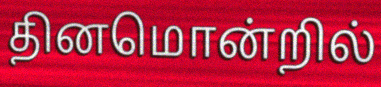
தினமொன்றில்